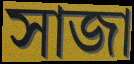
সাজা